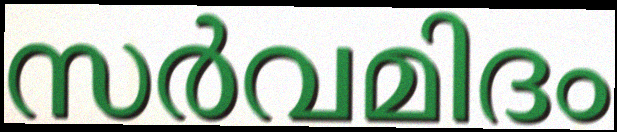
സർവമിദം